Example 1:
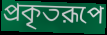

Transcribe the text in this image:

প্রকৃতরূপে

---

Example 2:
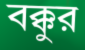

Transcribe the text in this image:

বক্কুর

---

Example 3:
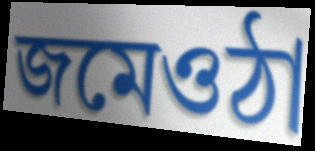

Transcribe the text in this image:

জমেওঠা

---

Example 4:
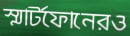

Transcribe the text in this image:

স্মার্টফোনেরও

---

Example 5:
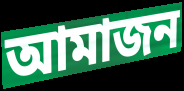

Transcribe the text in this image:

আমাজন